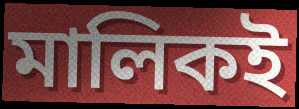
মালিকই